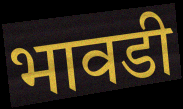
भावडी